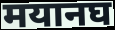
मयानघ